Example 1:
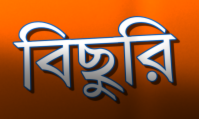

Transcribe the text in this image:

বিছুরি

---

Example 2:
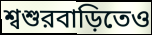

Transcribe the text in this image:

শ্বশুরবাড়িতেও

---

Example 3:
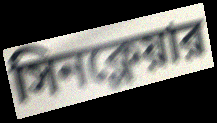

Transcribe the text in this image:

সিনক্লেয়ার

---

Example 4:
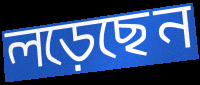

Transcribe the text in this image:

লড়েছেন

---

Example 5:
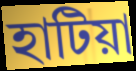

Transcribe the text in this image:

হাটিয়া